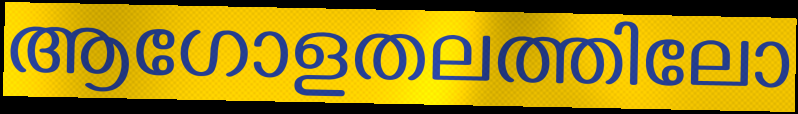
ആഗോളതലത്തിലോ